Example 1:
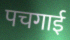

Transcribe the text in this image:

पचगाई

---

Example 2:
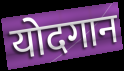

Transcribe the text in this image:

योदगान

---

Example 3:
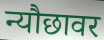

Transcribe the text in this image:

न्यौछावर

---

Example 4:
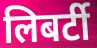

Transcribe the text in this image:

लिबर्टी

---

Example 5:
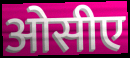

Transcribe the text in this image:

ओसीए